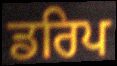
ਡਰਿਪ